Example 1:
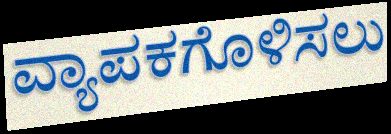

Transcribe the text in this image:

ವ್ಯಾಪಕಗೊಳಿಸಲು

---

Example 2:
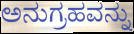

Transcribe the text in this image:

ಅನುಗ್ರಹವನ್ನು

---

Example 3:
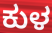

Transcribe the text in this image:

ಕುಳ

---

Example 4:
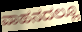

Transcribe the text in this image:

ವಾಹನದಲ್ಲೂ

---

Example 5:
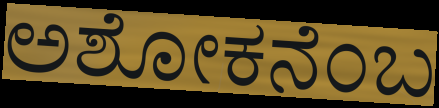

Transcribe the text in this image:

ಅಶೋಕನೆಂಬ